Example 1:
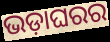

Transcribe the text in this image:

ଭଡ଼ାଘରର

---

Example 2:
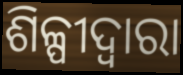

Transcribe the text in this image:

ଶିଳ୍ପୀଦ୍ୱାରା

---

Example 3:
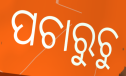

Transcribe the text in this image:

ପଚାରୁଚୁ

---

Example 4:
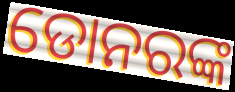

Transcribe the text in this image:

ଡୋନରଙ୍କ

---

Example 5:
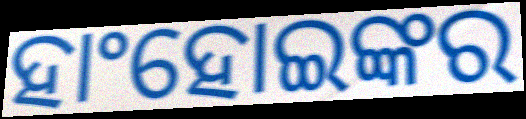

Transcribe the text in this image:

ହାଂହୋଇଙ୍କର